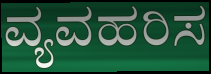
ವ್ಯವಹರಿಸ